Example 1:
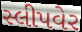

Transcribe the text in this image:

સ્લીપવેર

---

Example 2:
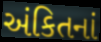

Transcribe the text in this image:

અંકિતનાં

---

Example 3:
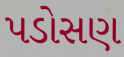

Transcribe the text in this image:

પડોસણ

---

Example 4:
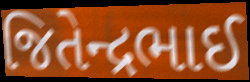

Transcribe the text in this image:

જિતેન્દ્રભાઈ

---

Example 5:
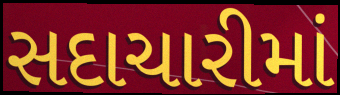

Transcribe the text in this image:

સદાચારીમાં